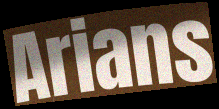
Arians